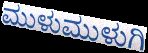
ಮುಳುಮುಳುಗಿ